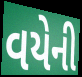
વયેની